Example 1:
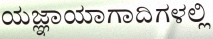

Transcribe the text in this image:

ಯಜ್ಞಾಯಾಗಾದಿಗಳಲ್ಲಿ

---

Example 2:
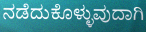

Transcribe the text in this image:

ನಡೆದುಕೊಳ್ಳುವುದಾಗಿ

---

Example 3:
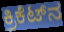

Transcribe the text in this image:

ಕ್ರಿಕೆಟ್‌ನ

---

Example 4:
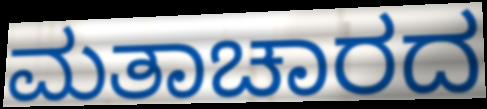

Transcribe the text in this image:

ಮತಾಚಾರದ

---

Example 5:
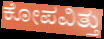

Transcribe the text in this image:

ಕೋಪವಿತ್ತು